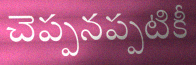
చెప్పనప్పటికీ